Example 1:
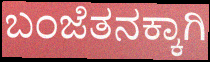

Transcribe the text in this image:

ಬಂಜೆತನಕ್ಕಾಗಿ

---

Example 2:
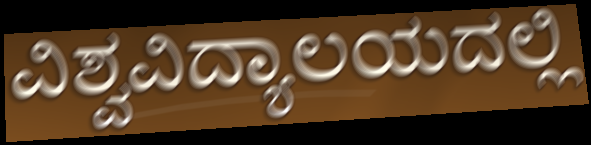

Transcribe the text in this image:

ವಿಶ್ವವಿದ್ಯಾಲಯದಲ್ಲಿ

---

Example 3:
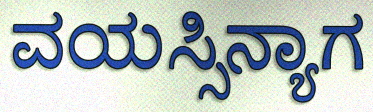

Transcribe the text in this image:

ವಯಸ್ಸಿನ್ಯಾಗ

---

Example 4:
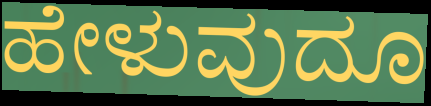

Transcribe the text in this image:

ಹೇಳುವುದೂ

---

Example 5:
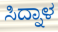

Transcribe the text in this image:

ಸಿದ್ನಾಳ